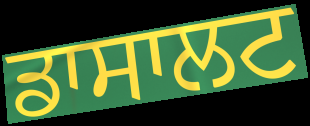
ਡਾਸਾਲਟ